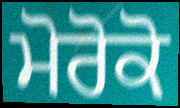
ਮੋਰੋਕੋ